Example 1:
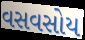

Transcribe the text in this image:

વસવસોય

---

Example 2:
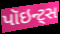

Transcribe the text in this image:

પૉઇન્ટ્સ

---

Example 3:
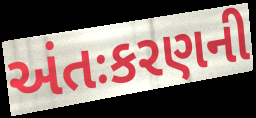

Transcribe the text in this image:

અંતઃકરણની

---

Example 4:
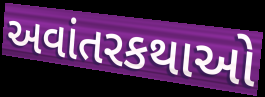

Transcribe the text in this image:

અવાંતરકથાઓ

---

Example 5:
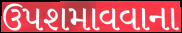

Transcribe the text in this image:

ઉપશમાવવાના